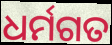
ଧର୍ମଗତ